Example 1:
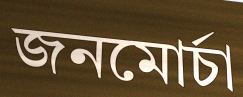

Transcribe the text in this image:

জনমোর্চা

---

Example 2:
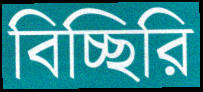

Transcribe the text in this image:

বিচ্ছিরি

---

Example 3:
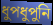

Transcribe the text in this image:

ধুপধুপুনি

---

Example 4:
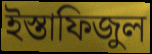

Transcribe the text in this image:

ইস্তাফিজুল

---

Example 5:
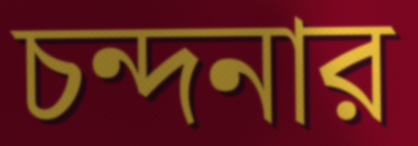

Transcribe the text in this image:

চন্দনার